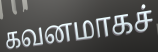
கவனமாகச்